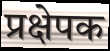
प्रक्षेपक